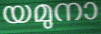
യമുനാ